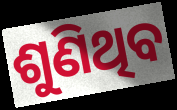
ଶୁଣିଥିବ